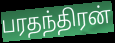
பரதந்திரன்